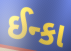
ઈન્કા